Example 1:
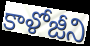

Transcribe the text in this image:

కాళోజీని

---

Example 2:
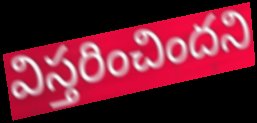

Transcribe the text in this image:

విస్తరించిందని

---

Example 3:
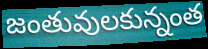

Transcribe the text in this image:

జంతువులకున్నంత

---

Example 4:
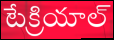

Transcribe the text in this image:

టేక్రియాల్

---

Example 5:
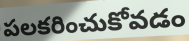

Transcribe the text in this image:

పలకరించుకోవడం